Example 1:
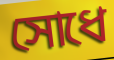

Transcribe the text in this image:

সোধে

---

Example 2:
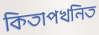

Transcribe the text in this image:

কিতাপখনিত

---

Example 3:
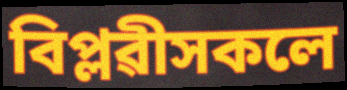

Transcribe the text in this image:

বিপ্লৱীসকলে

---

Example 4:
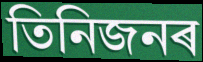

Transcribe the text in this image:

তিনিজনৰ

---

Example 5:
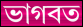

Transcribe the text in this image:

ভাগবত